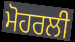
ਮੋਹਰਲੀ